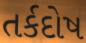
તર્કદોષ